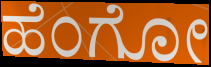
ಹೆಂಗೋ